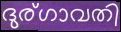
ദുര്ഗാവതി